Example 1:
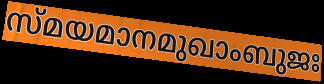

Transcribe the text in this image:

സ്മയമാനമുഖാംബുജഃ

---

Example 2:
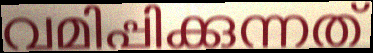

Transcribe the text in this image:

വമിപ്പിക്കുന്നത്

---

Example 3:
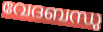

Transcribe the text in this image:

വേദബന്ധു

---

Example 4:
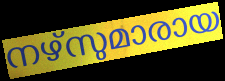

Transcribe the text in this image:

നഴ്സുമാരായ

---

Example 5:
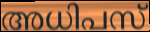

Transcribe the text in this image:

അധിപസ്